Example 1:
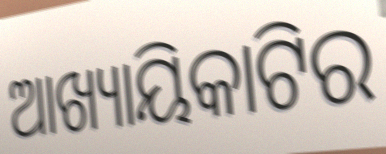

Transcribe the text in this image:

ଆଖ୍ୟାୟିକାଟିର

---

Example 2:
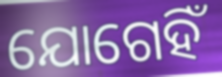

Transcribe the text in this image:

ଯୋଗେହିଁ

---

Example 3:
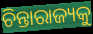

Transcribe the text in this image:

ଚିନ୍ତାରାଜ୍ୟକୁ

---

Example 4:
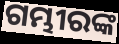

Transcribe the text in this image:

ଗମ୍ଭୀରଙ୍କ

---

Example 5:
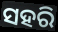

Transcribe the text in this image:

ସହରି